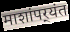
माशांपर्यंत